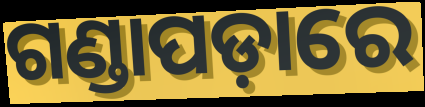
ଗଣ୍ଡାପଡ଼ାରେ